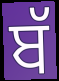
ਬੱ